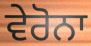
ਵੇਰੋਨਾ